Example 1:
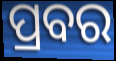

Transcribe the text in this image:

ପ୍ରବର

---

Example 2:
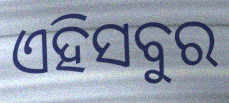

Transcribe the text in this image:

ଏହିସବୁର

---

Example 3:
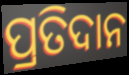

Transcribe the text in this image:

ପ୍ରତିଦାନ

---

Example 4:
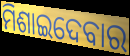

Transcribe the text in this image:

ମିଶାଇଦେବାର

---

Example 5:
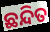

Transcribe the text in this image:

ଛନ୍ଦିତ